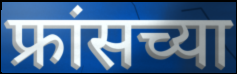
फ्रांसच्या